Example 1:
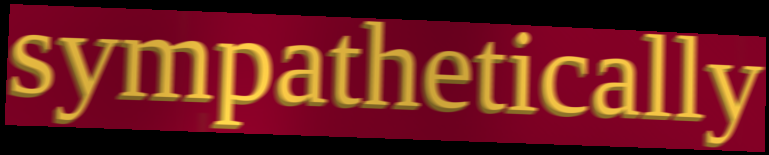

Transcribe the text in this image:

sympathetically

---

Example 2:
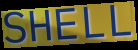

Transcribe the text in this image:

SHELL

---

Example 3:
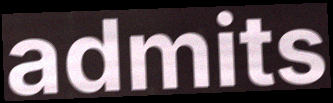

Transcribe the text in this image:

admits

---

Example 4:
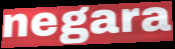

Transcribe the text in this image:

negara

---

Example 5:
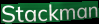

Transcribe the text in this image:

Stackman